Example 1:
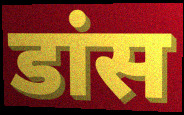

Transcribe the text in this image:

डांस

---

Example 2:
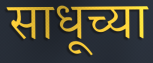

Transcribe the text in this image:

साधूच्या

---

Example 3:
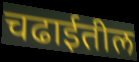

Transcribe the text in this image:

चढाईतील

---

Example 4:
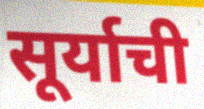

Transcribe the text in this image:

सूर्याची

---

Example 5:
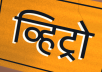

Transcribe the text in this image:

व्हिट्रो